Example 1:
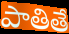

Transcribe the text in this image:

పాతితే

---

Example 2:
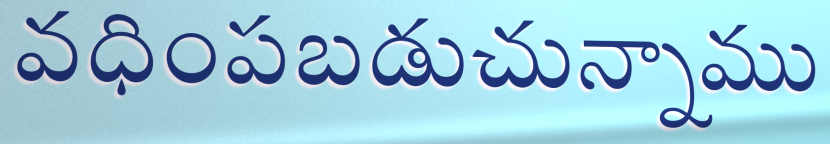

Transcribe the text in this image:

వధింపబడుచున్నాము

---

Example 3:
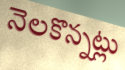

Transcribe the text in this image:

నెలకొన్నట్లు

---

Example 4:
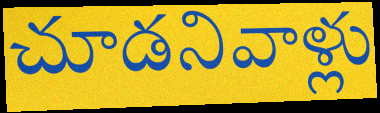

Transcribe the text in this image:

చూడనివాళ్లు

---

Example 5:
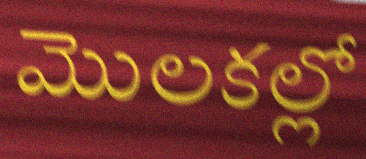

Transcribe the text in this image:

మొలకల్లో